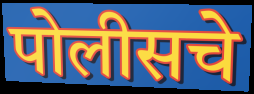
पोलीसचे